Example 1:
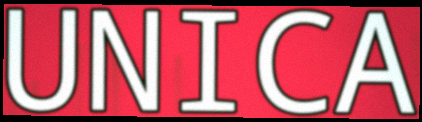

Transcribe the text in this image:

UNICA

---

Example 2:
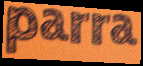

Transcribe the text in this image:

parra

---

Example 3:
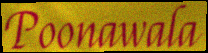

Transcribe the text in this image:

Poonawala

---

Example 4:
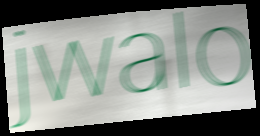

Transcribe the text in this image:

jwalo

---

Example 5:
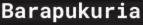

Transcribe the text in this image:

Barapukuria